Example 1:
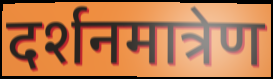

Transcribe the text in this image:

दर्शनमात्रेण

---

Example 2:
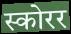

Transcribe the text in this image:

स्कोरर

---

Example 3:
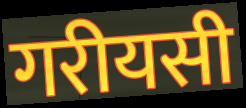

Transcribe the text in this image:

गरीयसी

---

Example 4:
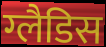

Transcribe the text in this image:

ग्लैडिस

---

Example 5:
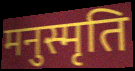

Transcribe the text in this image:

मनुस्मृति